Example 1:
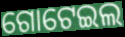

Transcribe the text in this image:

ଗୋଟେଇଲ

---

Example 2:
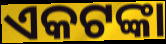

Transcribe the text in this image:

ଏକଟଙ୍କା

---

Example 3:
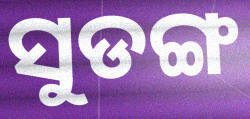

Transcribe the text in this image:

ସୁଡଙ୍ଗ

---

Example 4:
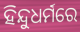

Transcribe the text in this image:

ହିନ୍ଦୁଧର୍ମରେ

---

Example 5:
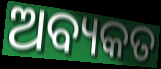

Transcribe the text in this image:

ଅବ୍ୟକତ